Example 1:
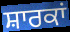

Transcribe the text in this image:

ਸ਼ਾਰਕਾਂ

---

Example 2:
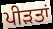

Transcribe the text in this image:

ਪੀੜਤਾਂ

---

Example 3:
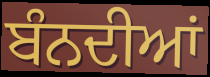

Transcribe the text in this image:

ਬੰਨਦੀਆਂ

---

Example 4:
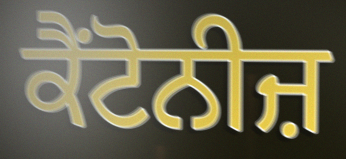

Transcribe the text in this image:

ਕੈਂਟੋਨੀਜ਼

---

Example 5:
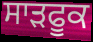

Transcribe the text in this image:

ਸਾੜਫੂਕ